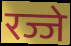
रज्जे